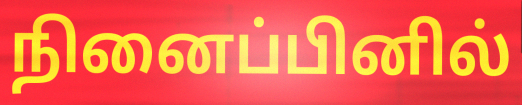
நினைப்பினில்